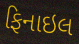
ફિનાઇલ